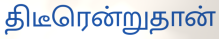
திடீரென்றுதான்